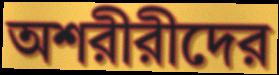
অশরীরীদের